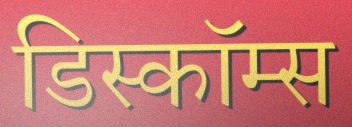
डिस्कॉम्स